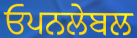
ਓਪਨਲੇਬਲ